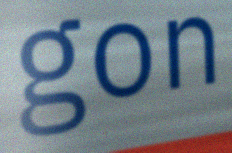
gon